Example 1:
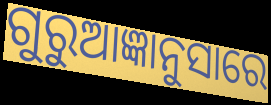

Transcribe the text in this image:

ଗୁରୁଆଜ୍ଞାନୁସାରେ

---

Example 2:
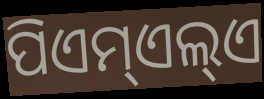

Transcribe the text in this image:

ପିଏମ୍ଏଲ୍ଏ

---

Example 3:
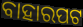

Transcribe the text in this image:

ବାହାରପଟ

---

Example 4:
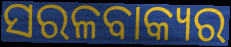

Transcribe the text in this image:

ସରଳବାକ୍ୟର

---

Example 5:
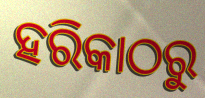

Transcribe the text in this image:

ହରିକାଠରୁ